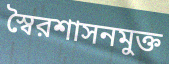
স্বৈরশাসনমুক্ত